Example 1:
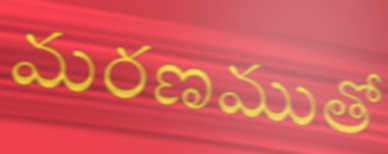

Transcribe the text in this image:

మరణముతో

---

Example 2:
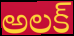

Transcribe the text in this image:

అలక్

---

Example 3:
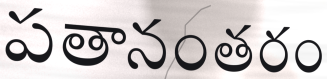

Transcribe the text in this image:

పతానంతరం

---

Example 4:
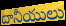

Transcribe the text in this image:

దానీయులు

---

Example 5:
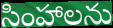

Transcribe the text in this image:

సింహాలను